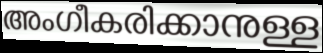
അംഗീകരിക്കാനുള്ള